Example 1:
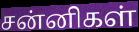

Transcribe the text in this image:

சன்னிகள்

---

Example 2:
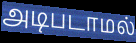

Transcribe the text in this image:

அடிபடாமல்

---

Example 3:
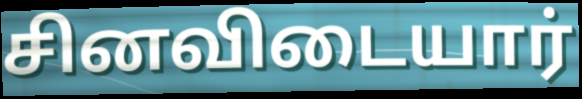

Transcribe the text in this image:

சினவிடையார்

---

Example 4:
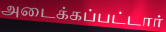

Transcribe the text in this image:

அடைக்கப்பட்டார்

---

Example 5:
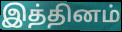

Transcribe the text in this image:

இத்தினம்